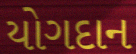
યોગદાન